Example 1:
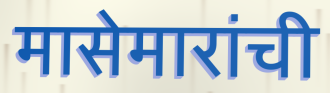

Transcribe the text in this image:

मासेमारांची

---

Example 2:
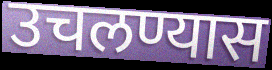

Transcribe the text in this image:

उचलण्यास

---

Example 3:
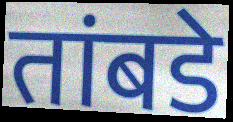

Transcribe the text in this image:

तांबडे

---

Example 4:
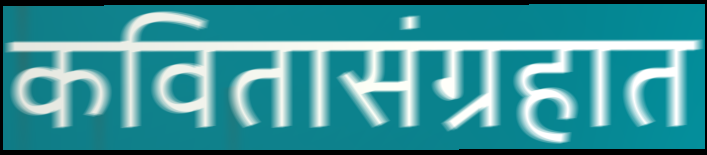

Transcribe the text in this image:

कवितासंग्रहात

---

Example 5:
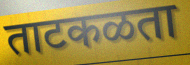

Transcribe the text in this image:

ताटकळता